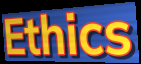
Ethics